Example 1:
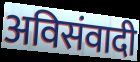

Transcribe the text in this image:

अविसंवादी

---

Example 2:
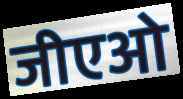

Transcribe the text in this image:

जीएओ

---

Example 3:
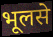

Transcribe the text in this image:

भूलसे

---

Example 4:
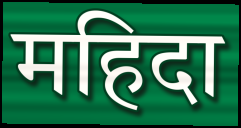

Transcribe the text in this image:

महिदा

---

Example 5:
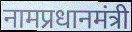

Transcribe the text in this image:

नामप्रधानमंत्री